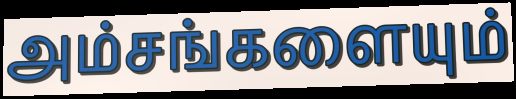
அம்சங்களையும்